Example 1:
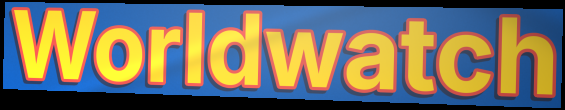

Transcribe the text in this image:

Worldwatch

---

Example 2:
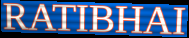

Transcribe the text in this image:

RATIBHAI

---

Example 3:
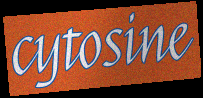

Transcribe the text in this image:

cytosine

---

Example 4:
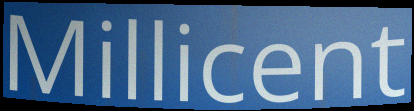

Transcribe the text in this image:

Millicent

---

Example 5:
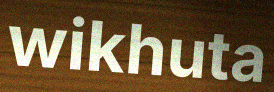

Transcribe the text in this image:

wikhuta